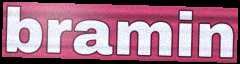
bramin